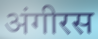
अंगीरस